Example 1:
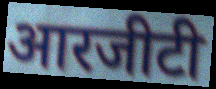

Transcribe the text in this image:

आरजीटी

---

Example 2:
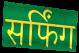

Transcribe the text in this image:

सर्फिंग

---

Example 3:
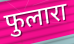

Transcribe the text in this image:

फुलारा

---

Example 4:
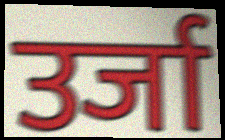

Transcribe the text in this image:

उर्जा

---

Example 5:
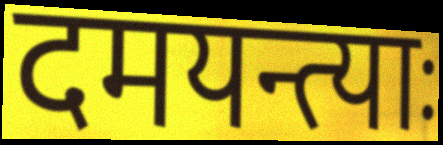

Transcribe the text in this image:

दमयन्त्याः